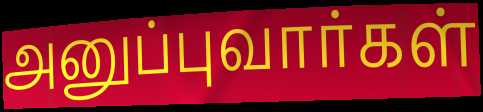
அனுப்புவார்கள்